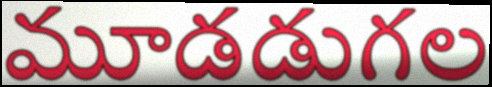
మూడడుగల